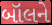
બૉલને